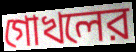
গোখলের